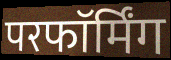
परफॉर्मिंग